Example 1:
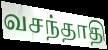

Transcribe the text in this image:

வசந்தாதி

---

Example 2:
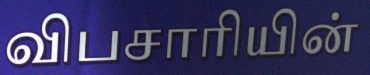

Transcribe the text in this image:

விபசாரியின்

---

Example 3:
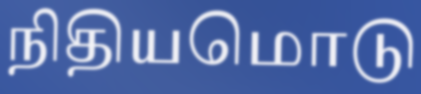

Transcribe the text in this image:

நிதியமொடு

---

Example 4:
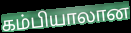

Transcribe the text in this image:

கம்பியாலான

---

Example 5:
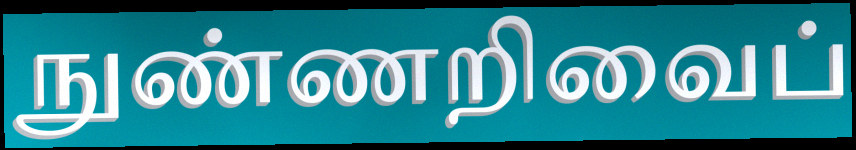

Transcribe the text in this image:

நுண்ணறிவைப்